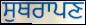
ਸੁਥਰਾਪਣ